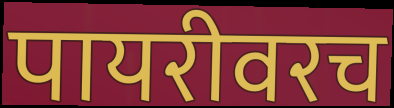
पायरीवरच